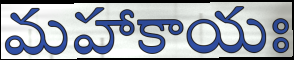
మహాకాయః